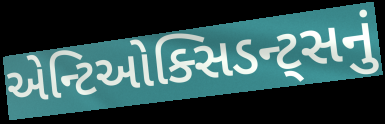
એન્ટિઓક્સિડન્ટ્સનું